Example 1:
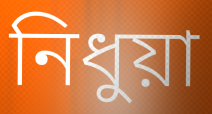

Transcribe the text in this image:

নিধুয়া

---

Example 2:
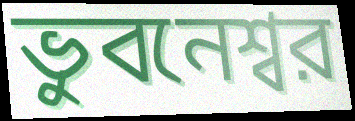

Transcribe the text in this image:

ভুবনেশ্বর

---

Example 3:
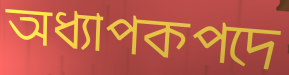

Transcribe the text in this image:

অধ্যাপকপদে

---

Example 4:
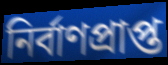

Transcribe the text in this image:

নির্বাণপ্রাপ্ত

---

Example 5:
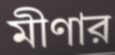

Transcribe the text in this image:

মীণার